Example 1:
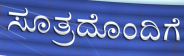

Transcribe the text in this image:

ಸೂತ್ರದೊಂದಿಗೆ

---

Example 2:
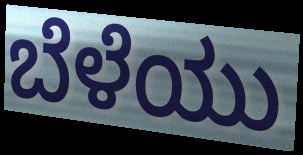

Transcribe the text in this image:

ಬೆಳೆಯು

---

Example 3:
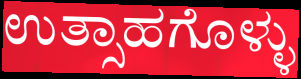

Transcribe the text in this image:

ಉತ್ಸಾಹಗೊಳ್ಳು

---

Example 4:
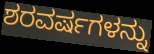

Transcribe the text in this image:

ಶರವರ್ಷಗಳನ್ನು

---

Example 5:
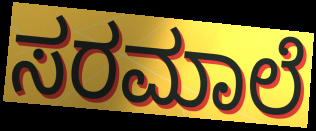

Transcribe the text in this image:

ಸರಮಾಲೆ